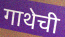
गाथेची